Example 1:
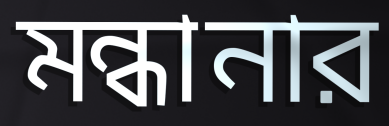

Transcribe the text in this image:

মন্ধানার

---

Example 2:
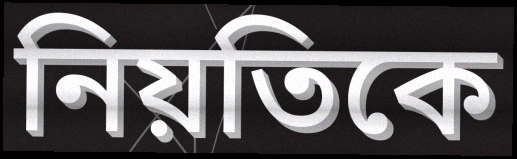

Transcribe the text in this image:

নিয়তিকে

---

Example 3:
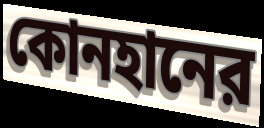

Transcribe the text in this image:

কোনহানের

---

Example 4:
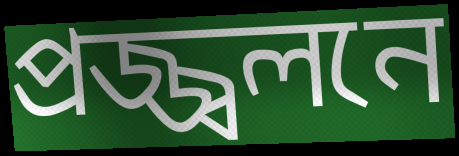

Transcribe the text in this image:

প্রজ্জ্বলনে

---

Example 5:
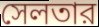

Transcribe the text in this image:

সেলতার